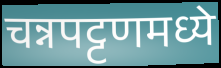
चन्नपट्टणमध्ये